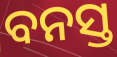
ବନସ୍ତ